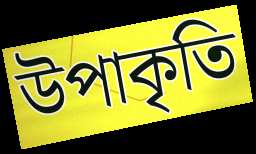
উপাকৃতি